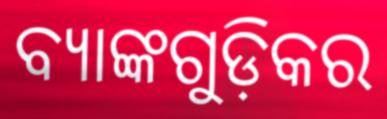
ବ୍ୟାଙ୍କଗୁଡ଼ିକର